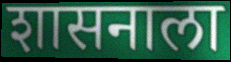
शासनाला